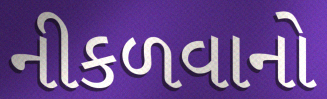
નીકળવાનો